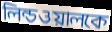
লিন্ডওয়ালকে